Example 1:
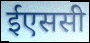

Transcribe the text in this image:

ईएससी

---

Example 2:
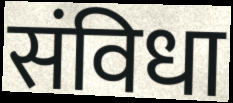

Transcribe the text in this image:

संविधा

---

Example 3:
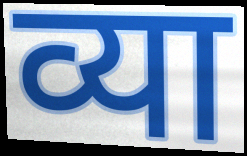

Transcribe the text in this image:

व्या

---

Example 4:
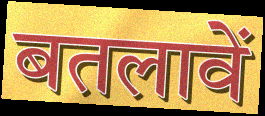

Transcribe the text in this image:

बतलावें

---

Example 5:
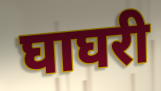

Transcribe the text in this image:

घाघरी